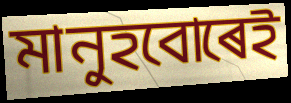
মানুহবোৰেই